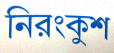
নিরংকুশ